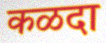
कळदा